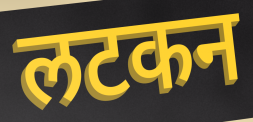
लटकन